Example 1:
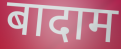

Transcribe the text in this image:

बादाम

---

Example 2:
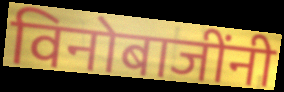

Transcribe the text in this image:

विनोबाजींनी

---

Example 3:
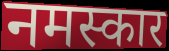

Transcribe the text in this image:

नमस्कार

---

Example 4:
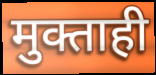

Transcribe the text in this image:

मुक्ताही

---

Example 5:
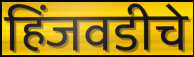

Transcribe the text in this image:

हिंजवडीचे